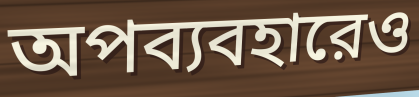
অপব্যবহারেও